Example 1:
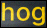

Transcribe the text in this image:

hog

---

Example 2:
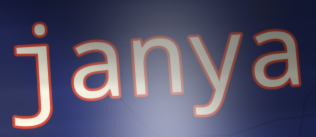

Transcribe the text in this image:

janya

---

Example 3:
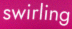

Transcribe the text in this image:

swirling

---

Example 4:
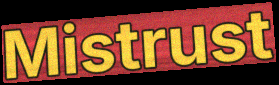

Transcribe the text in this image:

Mistrust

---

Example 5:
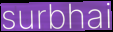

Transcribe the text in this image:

surbhai